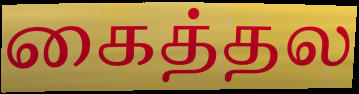
கைத்தல